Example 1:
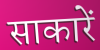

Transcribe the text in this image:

साकारें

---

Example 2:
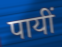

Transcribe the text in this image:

पायीं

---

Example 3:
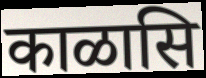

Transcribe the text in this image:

काळासि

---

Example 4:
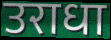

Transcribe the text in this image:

उराधा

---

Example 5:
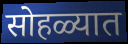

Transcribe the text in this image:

सोहळ्यात